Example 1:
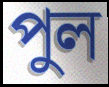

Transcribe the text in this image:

পুল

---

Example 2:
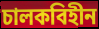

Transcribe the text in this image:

চালকবিহীন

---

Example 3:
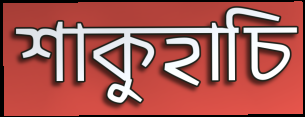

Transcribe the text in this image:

শাকুহাচি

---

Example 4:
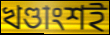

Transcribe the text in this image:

খণ্ডাংশই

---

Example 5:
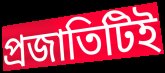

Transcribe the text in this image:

প্রজাতিটিই